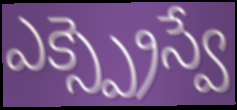
ఎక్స్ప్రెస్వే